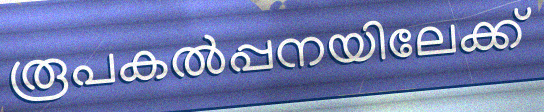
രൂപകൽപ്പനയിലേക്ക്